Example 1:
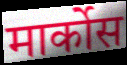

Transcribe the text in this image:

मार्कोस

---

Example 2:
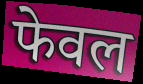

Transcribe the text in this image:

फेवल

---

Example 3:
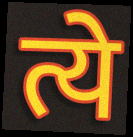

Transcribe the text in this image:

त्ये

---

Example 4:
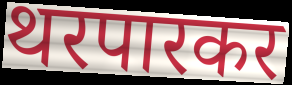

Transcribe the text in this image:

थरपारकर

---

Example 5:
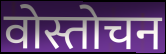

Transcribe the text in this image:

वोस्तोचन